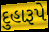
દુહારૂપે